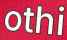
othi